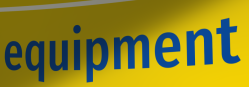
equipment